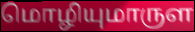
மொழியுமாருள